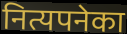
नित्यपनेका